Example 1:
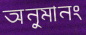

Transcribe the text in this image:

অনুমানং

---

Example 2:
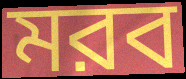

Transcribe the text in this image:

মরব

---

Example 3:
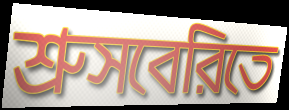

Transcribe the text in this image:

শ্রুসবেরিতে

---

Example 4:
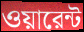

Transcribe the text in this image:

ওয়ারেন্ট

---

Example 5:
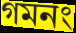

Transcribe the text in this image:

গমনং